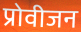
प्रोवीजन